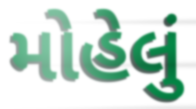
મોહેલું